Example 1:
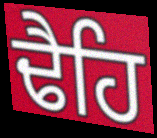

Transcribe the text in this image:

ਢੈਹਿ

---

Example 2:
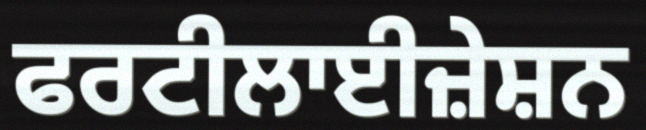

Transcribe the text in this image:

ਫਰਟੀਲਾਈਜ਼ੇਸ਼ਨ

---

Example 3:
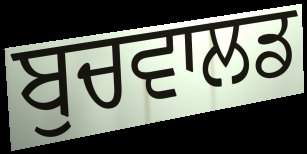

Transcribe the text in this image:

ਬੁਚਵਾਲਡ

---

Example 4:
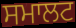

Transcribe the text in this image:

ਸਮਾਲਟ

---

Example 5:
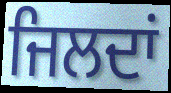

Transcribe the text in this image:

ਜਿਲਦਾਂ